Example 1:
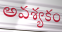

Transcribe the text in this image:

అవశ్యకం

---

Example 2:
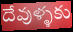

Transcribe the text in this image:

దేవుళ్ళకు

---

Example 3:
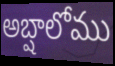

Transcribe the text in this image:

అబ్షాలోము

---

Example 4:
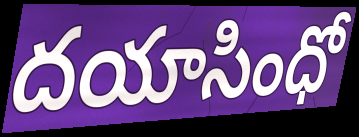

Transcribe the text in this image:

దయాసింధో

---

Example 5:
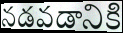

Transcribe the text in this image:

నడవడానికి